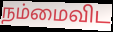
நம்மைவிட